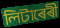
লিটাৰেৰী